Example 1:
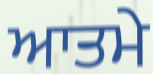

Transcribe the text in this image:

ਆਤਮੇ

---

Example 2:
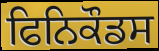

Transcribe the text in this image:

ਫਿਨਿਕੌਡਸ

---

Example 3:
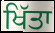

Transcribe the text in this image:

ਖਿੱਤਾ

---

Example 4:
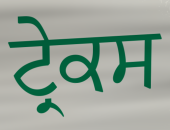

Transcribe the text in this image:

ਟ੍ਰੇਕਸ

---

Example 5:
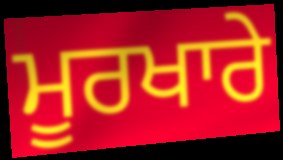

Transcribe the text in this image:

ਮੂਰਖਾਰੇ